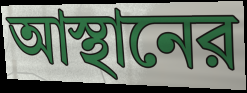
আস্থানের